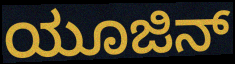
ಯೂಜಿನ್